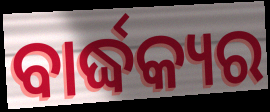
ବାର୍ଦ୍ଧକ୍ୟର